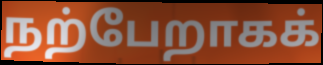
நற்பேறாகக்